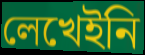
লেখেইনি